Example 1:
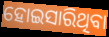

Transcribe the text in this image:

ହୋଇସାରିଥିବା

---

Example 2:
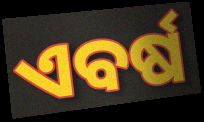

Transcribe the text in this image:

ଏବର୍ଷ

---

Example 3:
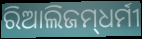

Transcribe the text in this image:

ରିଆଲିଜମ୍‌ଧର୍ମୀ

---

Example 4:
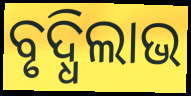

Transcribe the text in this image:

ବୃଦ୍ଧିଲାଭ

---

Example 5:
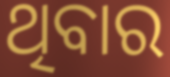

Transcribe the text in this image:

ଥିବାର